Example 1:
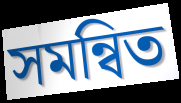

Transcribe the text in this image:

সমন্বিত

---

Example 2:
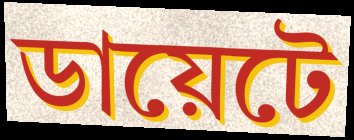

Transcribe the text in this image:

ডায়েটে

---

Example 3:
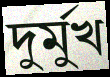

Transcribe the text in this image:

দুর্মুখ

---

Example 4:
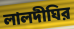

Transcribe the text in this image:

লালদীঘির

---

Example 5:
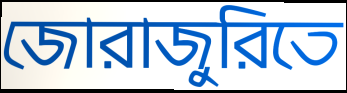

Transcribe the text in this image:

জোরাজুরিতে